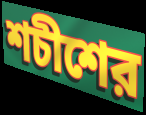
শচীশের